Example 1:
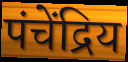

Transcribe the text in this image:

पंचेंद्रिय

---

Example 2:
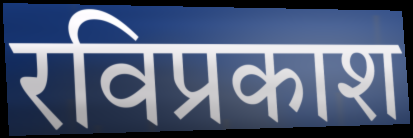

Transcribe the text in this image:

रविप्रकाश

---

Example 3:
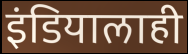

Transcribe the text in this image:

इंडियालाही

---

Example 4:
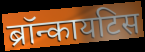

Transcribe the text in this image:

ब्रॉन्कायटिस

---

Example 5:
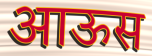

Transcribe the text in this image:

आऊस